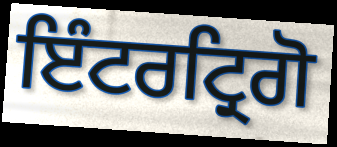
ਇੰਟਰਟ੍ਰਿਗੋ